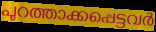
പുറത്താക്കപ്പെട്ടവർ